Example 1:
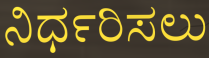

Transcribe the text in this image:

ನಿರ್ಧರಿಸಲು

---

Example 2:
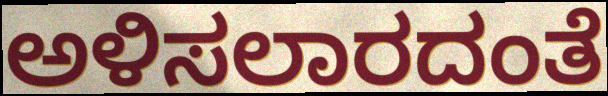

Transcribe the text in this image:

ಅಳಿಸಲಾರದಂತೆ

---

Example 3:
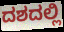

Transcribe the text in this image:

ದಶದಲ್ಲಿ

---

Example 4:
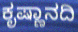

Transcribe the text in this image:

ಕೃಷ್ಣಾನದಿ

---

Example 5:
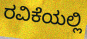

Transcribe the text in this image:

ರವಿಕೆಯಲ್ಲಿ